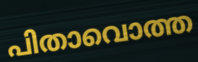
പിതാവൊത്ത